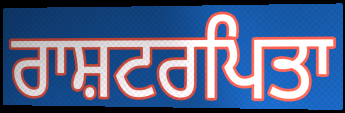
ਰਾਸ਼ਟਰਪਿਤਾ